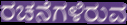
ರಚನೆಗಳಿರುವ